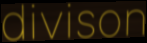
divison